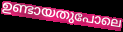
ഉണ്ടായതുപോലെ